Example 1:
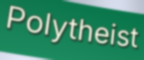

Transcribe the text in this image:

Polytheist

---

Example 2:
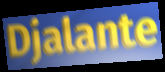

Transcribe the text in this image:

Djalante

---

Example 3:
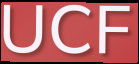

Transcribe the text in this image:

UCF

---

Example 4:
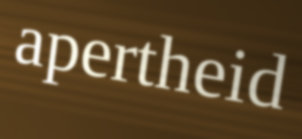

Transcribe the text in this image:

apertheid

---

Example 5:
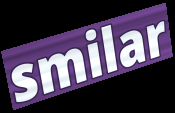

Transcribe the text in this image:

smilar